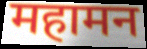
महामन